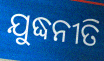
ଯୁଦ୍ଧନୀତି